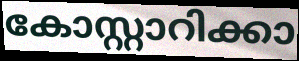
കോസ്റ്റാറിക്കാ